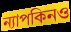
ন্যাপকিনও